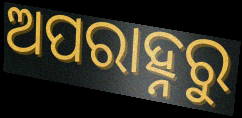
ଅପରାହ୍ନରୁ